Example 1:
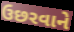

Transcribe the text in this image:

ઉછરવાને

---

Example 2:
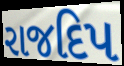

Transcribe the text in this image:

રાજદિપ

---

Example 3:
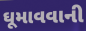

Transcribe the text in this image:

ઘૂમાવવાની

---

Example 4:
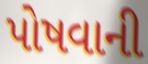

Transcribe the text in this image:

પોષવાની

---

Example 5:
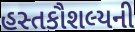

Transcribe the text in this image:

હસ્તકૌશલ્યની